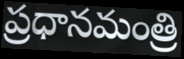
ప్రధానమంత్రి